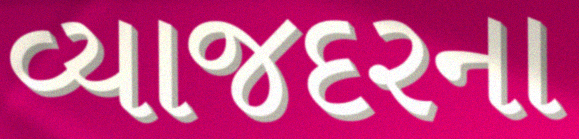
વ્યાજદરના